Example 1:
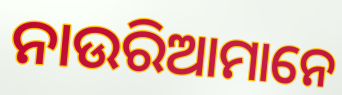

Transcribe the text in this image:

ନାଉରିଆମାନେ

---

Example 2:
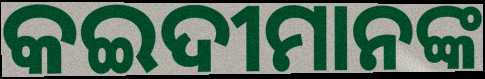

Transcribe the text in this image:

କଇଦୀମାନଙ୍କ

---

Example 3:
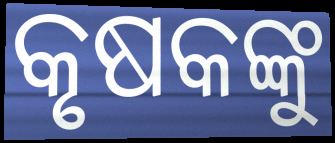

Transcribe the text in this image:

କୃଷକଙ୍କୁ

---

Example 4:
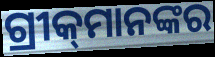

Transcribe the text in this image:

ଗ୍ରୀକ୍‌ମାନଙ୍କର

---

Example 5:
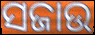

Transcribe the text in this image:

ସଜାଉ